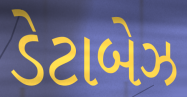
ડેટાબેઝ